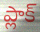
ప్లాక్